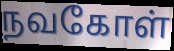
நவகோள்